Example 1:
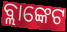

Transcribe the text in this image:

ବ୍ଲାଙ୍କେଟ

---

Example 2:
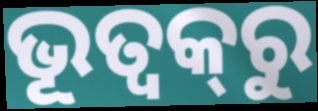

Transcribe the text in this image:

ଭୂତ୍ଵକ୍‌ରୁ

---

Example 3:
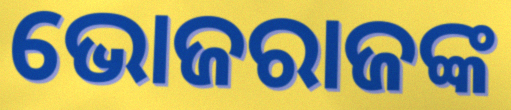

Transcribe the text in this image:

ଭୋଜରାଜଙ୍କ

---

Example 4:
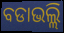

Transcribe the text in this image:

ବଡାଭଲ୍ଲି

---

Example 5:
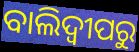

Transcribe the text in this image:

ବାଲିଦ୍ୱୀପରୁ